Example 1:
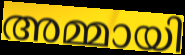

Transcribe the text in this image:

അമ്മായി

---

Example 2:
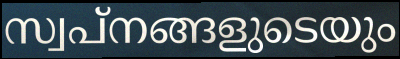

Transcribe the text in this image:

സ്വപ്നങ്ങളുടെയും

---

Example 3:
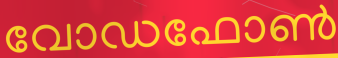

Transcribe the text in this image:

വോഡഫോൺ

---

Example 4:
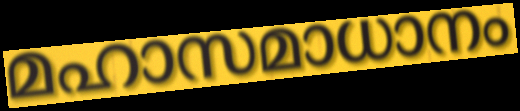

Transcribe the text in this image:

മഹാസമാധാനം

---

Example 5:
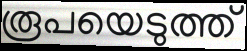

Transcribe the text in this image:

രൂപയെടുത്ത്